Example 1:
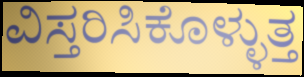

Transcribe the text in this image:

ವಿಸ್ತರಿಸಿಕೊಳ್ಳುತ್ತ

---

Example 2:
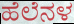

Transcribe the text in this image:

ಹೆಲೆನಳ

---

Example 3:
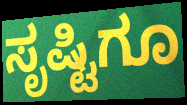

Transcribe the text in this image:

ಸೃಷ್ಟಿಗೂ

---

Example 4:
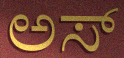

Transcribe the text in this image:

ಅಸ್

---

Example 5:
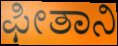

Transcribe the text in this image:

ಫೀತಾನಿ